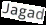
Jagad